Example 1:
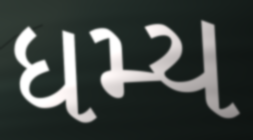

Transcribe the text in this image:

ધમ્ય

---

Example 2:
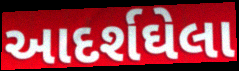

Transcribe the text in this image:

આદર્શઘેલા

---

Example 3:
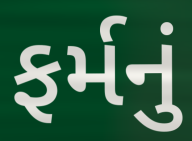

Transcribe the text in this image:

ફર્મનું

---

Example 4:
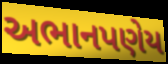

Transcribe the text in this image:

અભાનપણેય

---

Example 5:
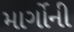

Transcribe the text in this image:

માર્ગોની